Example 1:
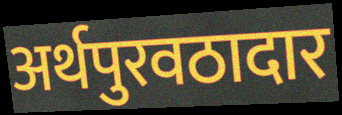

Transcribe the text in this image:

अर्थपुरवठादार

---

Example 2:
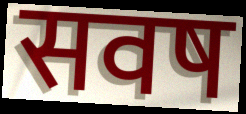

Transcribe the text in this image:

सवष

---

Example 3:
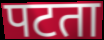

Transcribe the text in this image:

पटता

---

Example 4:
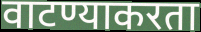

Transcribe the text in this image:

वाटण्याकरता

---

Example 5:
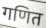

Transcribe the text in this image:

गणित